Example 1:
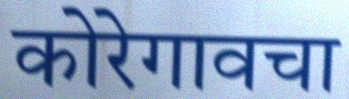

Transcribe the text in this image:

कोरेगावचा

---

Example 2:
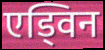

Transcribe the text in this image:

एड्विन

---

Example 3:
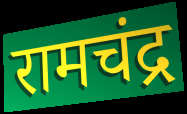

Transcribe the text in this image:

रामचंद्र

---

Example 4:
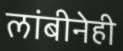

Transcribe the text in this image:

लांबीनेही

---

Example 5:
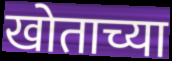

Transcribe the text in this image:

खोताच्या